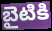
బైటికి